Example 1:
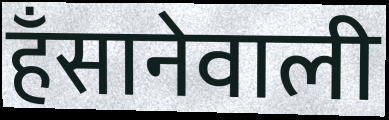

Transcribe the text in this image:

हँसानेवाली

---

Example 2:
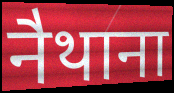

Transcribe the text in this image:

नैथाना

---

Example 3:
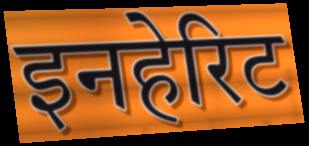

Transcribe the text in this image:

इनहेरिट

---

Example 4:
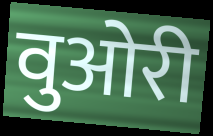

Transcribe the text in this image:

वुओरी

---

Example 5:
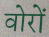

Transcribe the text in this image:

वोरों